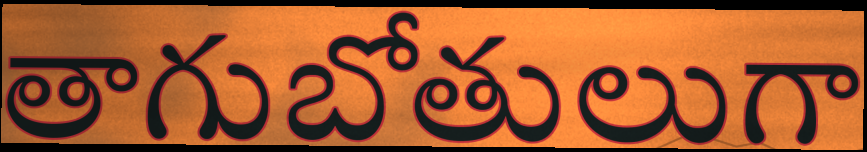
తాగుబోతులుగా